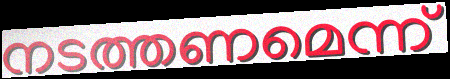
നടത്തണമെന്ന്